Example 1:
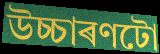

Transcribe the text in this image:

উচ্চাৰণটো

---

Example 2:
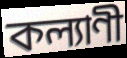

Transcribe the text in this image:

কল্যাণী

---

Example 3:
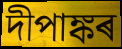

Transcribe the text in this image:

দীপাঙ্কৰ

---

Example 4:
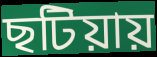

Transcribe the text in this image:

ছটিয়ায়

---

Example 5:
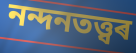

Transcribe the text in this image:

নন্দনতত্ত্বৰ